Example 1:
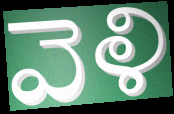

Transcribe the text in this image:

వెళి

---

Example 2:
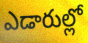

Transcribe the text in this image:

ఎడారుల్లో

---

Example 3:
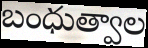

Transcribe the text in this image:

బంధుత్వాల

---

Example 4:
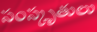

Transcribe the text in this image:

సంస్కృతులు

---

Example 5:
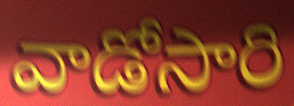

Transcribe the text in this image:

వాడోసారి